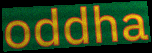
oddha